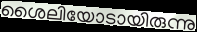
ശൈലിയോടായിരുന്നു